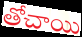
తోచాయి